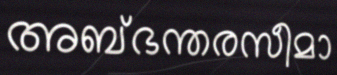
അബ്ഭന്തരസീമാ